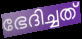
ഭേദിച്ചത്